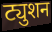
ट्युशन